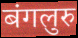
बंगलुरु